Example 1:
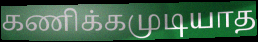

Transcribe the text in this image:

கணிக்கமுடியாத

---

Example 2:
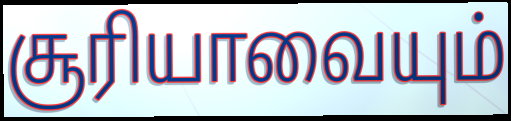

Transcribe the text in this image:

சூரியாவையும்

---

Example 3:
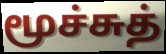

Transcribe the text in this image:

மூச்சுத்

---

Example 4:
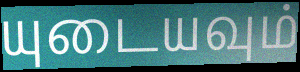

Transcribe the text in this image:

யுடையவும்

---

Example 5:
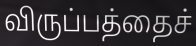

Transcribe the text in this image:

விருப்பத்தைச்